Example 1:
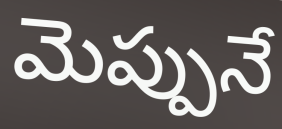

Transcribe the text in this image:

మెప్పునే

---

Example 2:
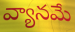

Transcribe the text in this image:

వ్యానమే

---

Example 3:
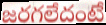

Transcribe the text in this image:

జరగలేదంటే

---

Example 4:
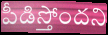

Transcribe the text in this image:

పీడిస్తోందని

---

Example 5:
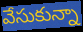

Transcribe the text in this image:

వేసుకున్నా